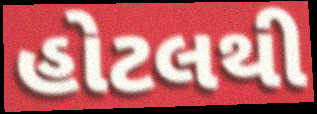
હોટલથી